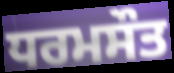
ਧਰਮਸੌਤ